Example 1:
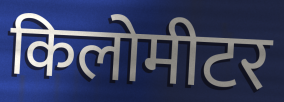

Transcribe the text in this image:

किलोमीटर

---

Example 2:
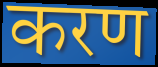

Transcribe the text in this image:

करण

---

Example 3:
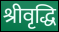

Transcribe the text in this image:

श्रीवृद्धि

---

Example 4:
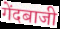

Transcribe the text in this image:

गेंदबाजी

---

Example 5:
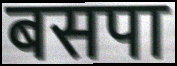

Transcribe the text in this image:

बसपा